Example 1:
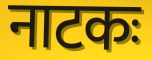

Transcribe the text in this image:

नाटकः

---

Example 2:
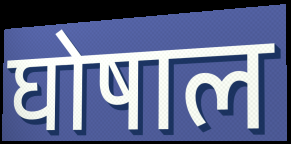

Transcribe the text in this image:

घोषाल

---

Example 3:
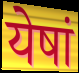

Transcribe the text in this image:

येषां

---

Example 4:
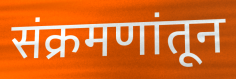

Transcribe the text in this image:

संक्रमणांतून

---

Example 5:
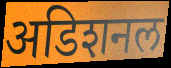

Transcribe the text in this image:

अडिशनल